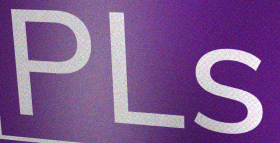
PLs